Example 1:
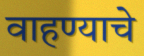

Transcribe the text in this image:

वाहण्याचे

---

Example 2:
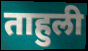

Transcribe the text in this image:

ताहुली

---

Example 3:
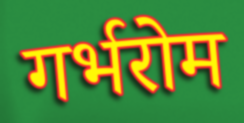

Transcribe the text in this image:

गर्भरोम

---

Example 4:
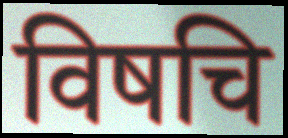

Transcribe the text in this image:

विषचि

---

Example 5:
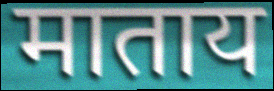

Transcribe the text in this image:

माताय